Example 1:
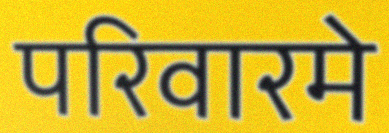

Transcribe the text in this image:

परिवारमे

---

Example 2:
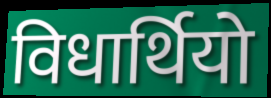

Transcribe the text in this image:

विधार्थियो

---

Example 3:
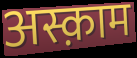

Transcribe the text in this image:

अस्क़ाम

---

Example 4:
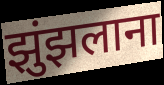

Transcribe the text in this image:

झुंझलाना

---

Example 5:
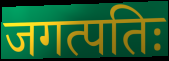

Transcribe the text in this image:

जगत्पतिः